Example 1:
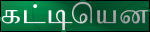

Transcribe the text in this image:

கட்டியென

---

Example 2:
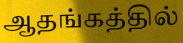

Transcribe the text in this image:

ஆதங்கத்தில்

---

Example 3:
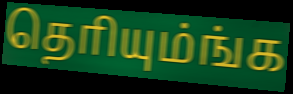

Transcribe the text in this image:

தெரியும்ங்க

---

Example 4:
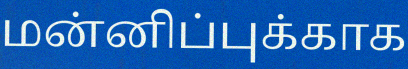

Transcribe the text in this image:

மன்னிப்புக்காக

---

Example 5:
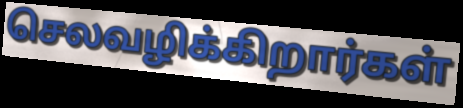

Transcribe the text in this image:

செலவழிக்கிறார்கள்